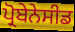
ਪ੍ਰੋਬੇਨੇਸੀਡ